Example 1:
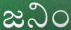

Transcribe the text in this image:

జనిం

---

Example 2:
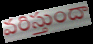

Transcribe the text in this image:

వరిస్తుందా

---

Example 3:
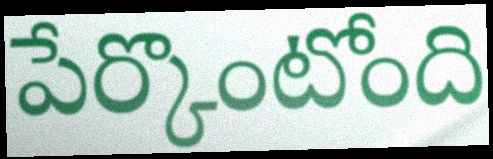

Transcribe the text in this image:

పేర్కొంటోంది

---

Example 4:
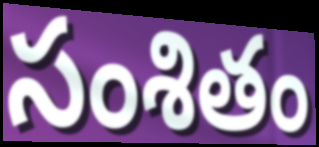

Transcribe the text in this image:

సంశితం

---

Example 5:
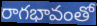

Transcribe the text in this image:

రాగభావంతో